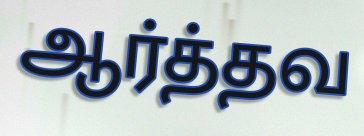
ஆர்த்தவ